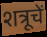
शत्रूचें